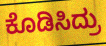
ಕೊಡಿಸಿದ್ರು